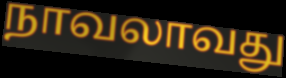
நாவலாவது